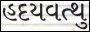
હદયવત્થુ